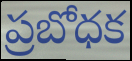
ప్రబోధక